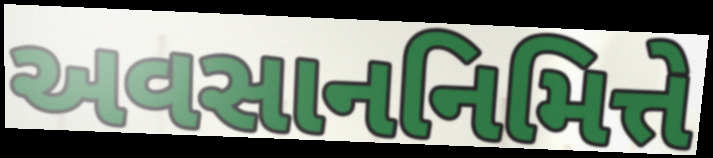
અવસાનનિમિત્તે